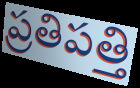
ప్రతిపత్తి